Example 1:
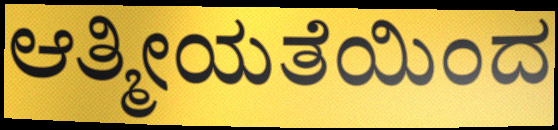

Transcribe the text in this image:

ಆತ್ಮೀಯತೆಯಿಂದ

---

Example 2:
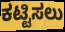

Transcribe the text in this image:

ಕಟ್ಟಿಸಲು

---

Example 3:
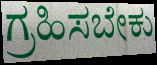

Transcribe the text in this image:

ಗ್ರಹಿಸಬೇಕು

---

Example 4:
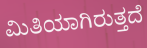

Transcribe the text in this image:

ಮಿತಿಯಾಗಿರುತ್ತದೆ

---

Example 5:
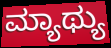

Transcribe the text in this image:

ಮ್ಯಾಥ್ಯು